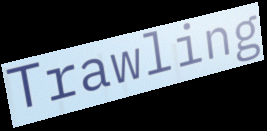
Trawling